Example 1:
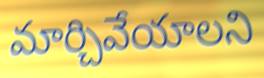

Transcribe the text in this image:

మార్చివేయాలని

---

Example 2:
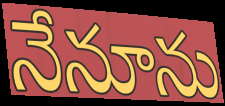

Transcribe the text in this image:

నేనూను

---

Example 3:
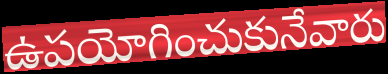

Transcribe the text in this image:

ఉపయోగించుకునేవారు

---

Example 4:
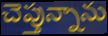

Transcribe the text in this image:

చెప్తున్నాను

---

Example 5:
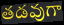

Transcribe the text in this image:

తడవుగా